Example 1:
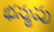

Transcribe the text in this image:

భస్మపు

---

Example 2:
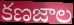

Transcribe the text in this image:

కణజాల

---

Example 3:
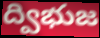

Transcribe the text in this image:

ద్విభుజ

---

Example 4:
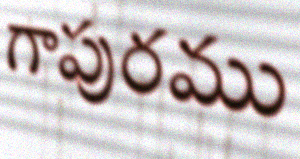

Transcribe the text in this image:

గాపురము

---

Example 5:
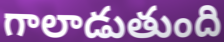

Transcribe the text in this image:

గాలాడుతుంది